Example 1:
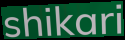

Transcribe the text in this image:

shikari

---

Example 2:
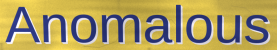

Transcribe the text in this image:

Anomalous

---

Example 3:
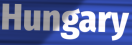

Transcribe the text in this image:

Hungary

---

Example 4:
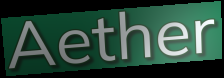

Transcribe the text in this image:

Aether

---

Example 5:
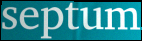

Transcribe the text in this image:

septum